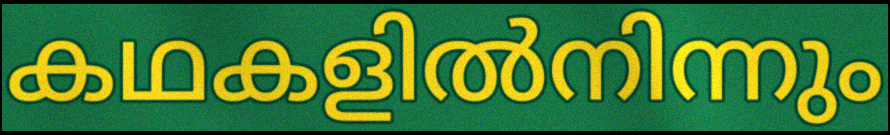
കഥകളിൽനിന്നും